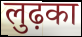
लुढ़का